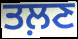
ਤਲ਼ਣ